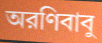
অরণিবাবু